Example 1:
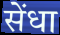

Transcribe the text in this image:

सेंधा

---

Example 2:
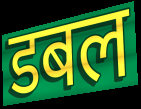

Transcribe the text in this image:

डबल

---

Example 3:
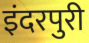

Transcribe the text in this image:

इंदरपुरी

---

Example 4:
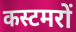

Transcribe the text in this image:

कस्टमरों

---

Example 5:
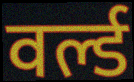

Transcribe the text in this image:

वर्ल्‍ड